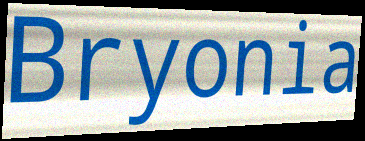
Bryonia